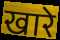
खारे